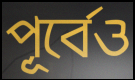
পূর্বেও